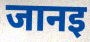
जानइ